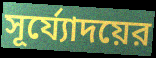
সূর্য্যোদয়ের